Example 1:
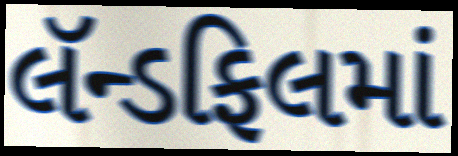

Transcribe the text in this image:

લૅન્ડફિલમાં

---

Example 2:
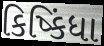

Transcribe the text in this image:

કિષ્કિંધા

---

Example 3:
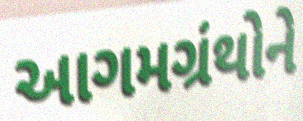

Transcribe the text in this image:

આગમગ્રંથોને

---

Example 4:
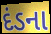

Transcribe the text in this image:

દંડના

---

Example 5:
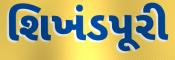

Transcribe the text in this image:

શિખંડપૂરી